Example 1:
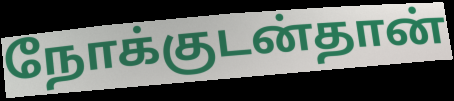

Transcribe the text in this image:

நோக்குடன்தான்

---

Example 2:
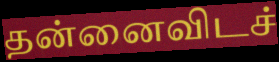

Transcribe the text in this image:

தன்னைவிடச்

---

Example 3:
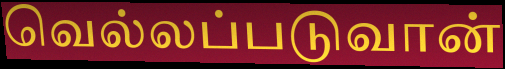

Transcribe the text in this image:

வெல்லப்படுவான்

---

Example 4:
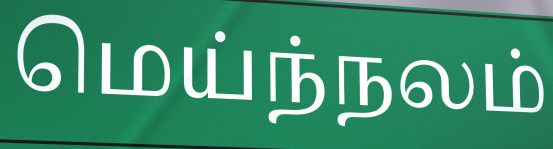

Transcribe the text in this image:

மெய்ந்நலம்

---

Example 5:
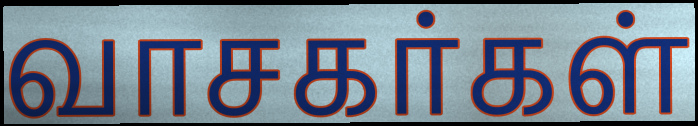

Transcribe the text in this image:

வாசகர்கள்